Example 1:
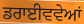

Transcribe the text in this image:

ਡਰਾਈਵਵੇਆਂ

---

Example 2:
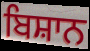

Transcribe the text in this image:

ਬਿਸ਼ਾਨ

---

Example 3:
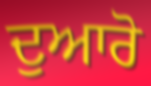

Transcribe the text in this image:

ਦੁਆਰੋ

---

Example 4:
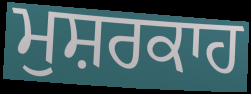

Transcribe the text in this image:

ਮੁਸ਼ਰਕਾਹ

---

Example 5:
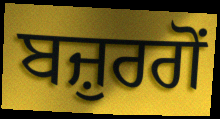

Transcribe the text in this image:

ਬਜ਼ੁਰਗੋਂ